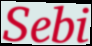
Sebi